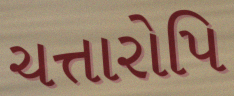
ચત્તારોપિ